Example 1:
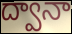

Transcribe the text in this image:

ద్వానా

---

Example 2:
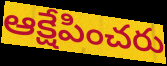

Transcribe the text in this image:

ఆక్షేపించరు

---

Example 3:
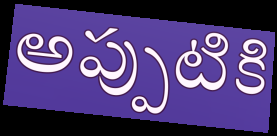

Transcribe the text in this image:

అప్పుటికి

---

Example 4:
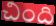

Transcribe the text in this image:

చింది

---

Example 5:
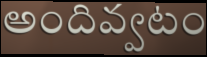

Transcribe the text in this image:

అందివ్వటం